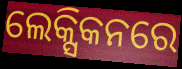
ଲେକ୍ସିକନରେ